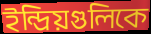
ইন্দ্রিয়গুলিকে